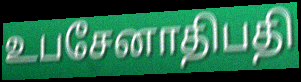
உபசேனாதிபதி